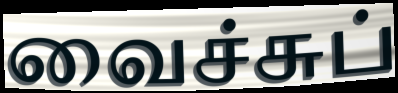
வைச்சுப்